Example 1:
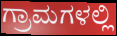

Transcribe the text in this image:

ಗ್ರಾಮಗಳಲ್ಲಿ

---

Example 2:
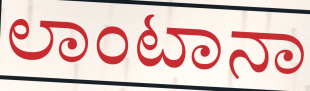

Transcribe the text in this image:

ಲಾಂಟಾನಾ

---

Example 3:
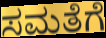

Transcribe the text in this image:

ಸಮತೆಗೆ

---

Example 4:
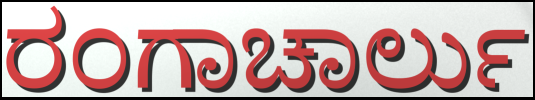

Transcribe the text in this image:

ರಂಗಾಚಾರ್ಲು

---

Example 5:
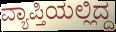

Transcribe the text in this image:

ವ್ಯಾಪ್ತಿಯಲ್ಲಿದ್ದ